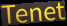
Tenet